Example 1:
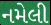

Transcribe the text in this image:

નમેલી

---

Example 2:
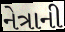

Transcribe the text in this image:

નેત્રાની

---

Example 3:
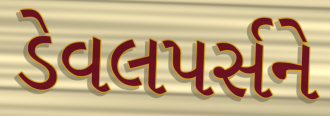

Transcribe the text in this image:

ડેવલપર્સને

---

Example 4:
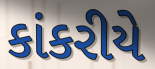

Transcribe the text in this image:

કાંકરીયે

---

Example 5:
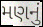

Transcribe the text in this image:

મણનું